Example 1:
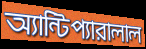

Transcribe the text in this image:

অ্যান্টিপ্যারালাল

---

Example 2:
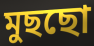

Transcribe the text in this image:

মুছছো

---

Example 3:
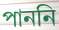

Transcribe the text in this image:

পাননি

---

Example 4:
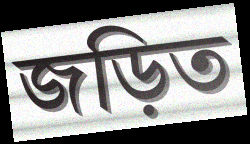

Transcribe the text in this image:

জড়িত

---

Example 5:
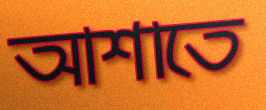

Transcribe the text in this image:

আশাতে